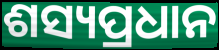
ଶସ୍ୟପ୍ରଧାନ